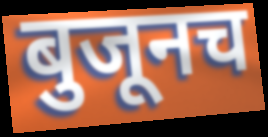
बुजूनच